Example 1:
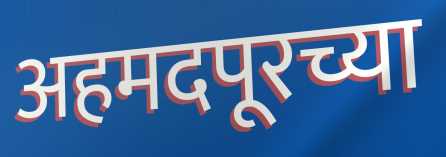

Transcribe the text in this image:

अहमदपूरच्या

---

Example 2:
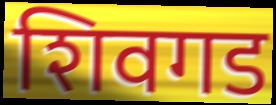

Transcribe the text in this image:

शिवगड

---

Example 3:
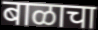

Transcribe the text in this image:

बाळाचा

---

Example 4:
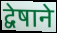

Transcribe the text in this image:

द्वेषाने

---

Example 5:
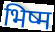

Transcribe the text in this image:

भिष्म